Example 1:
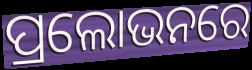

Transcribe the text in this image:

ପ୍ରଲୋଭନରେ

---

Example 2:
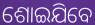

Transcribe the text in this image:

ଶୋଇଯିବେ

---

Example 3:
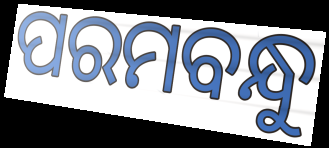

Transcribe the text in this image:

ପରମବନ୍ଧୁ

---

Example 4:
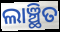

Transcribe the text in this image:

ଲାଞ୍ଛିତ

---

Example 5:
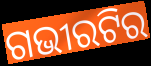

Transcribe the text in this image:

ଗଭୀରଟିର